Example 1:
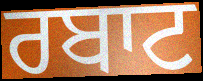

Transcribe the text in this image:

ਰਬਾਟ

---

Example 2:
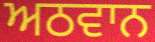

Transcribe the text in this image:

ਅਠਵਾਨ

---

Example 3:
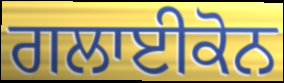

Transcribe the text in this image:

ਗਲਾਈਕੋਨ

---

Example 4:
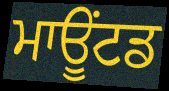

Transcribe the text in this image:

ਮਾਊਂਟਡ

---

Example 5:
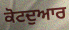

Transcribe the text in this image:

ਕੋਟਦੁਆਰ